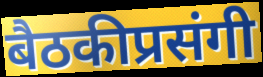
बैठकीप्रसंगी